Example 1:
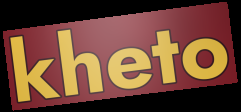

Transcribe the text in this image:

kheto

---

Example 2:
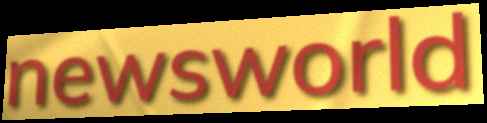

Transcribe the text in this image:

newsworld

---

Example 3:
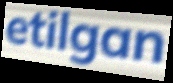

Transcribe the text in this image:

etilgan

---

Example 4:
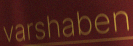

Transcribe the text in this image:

varshaben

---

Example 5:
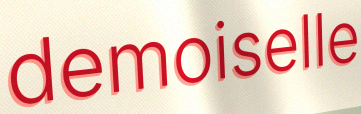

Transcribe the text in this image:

demoiselle